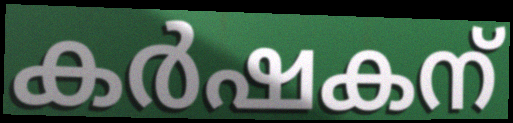
കർഷകന്